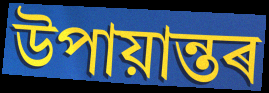
উপায়ান্তৰ